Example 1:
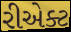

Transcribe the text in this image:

રીએક્ટ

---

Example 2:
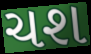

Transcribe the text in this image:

ચશ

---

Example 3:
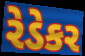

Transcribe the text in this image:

રેડેકર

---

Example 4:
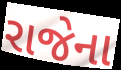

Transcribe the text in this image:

રાજેના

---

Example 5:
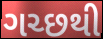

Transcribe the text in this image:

ગચ્છથી